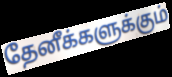
தேனீக்களுக்கும்